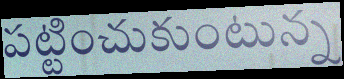
పట్టించుకుంటున్న